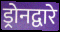
ड्रोनद्वारे